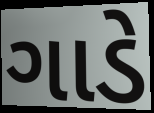
ગાડે